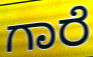
ಗಾರೆ